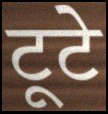
टूटे